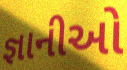
જ્ઞાનીઓ